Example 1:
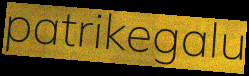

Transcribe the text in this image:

patrikegalu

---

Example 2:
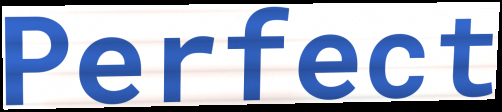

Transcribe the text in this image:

Perfect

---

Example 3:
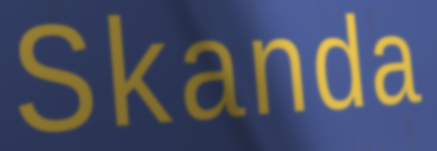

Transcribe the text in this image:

Skanda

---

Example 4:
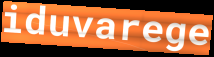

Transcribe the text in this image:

iduvarege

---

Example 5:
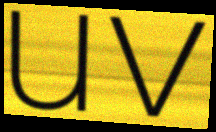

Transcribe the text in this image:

uv